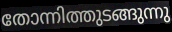
തോന്നിത്തുടങ്ങുന്നു